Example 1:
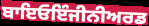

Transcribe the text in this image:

ਬਾਇਓਇੰਜੀਨੀਅਰਡ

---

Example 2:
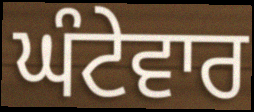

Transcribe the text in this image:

ਘੰਟੇਵਾਰ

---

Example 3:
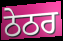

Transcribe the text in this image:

ਠੇਠਰ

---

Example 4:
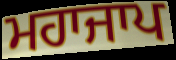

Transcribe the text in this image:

ਮਹਾਜਾਪ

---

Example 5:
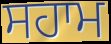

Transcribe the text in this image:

ਸਹਾਮ